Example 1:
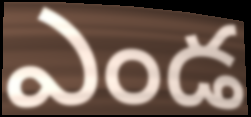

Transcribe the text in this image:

ఎండ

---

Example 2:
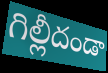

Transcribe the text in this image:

గిల్లీదండా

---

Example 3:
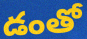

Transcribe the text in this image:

డంతో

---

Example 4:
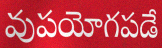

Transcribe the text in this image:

వుపయోగపడే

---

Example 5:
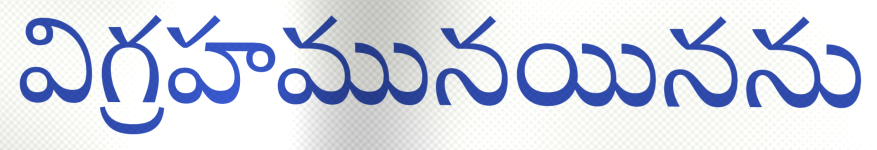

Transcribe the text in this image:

విగ్రహమునయినను